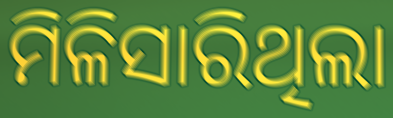
ମିଳିସାରିଥିଲା